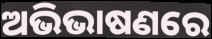
ଅଭିଭାଷଣରେ